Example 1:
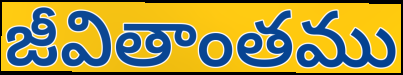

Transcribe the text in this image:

జీవితాంతము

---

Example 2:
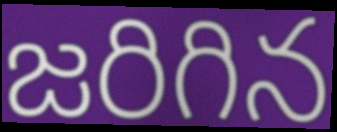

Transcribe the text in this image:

జరిగిన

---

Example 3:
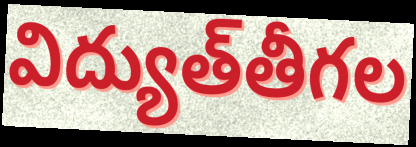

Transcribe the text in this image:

విద్యుత్‌తీగల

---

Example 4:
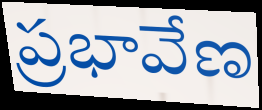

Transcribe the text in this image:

ప్రభావేణ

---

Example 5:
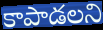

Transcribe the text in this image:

కాపాడలని